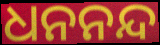
ଧନନନ୍ଦ